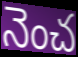
నెంచ